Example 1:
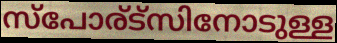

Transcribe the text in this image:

സ്പോര്ട്സിനോടുള്ള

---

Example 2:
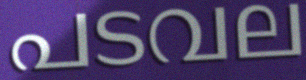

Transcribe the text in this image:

പടവല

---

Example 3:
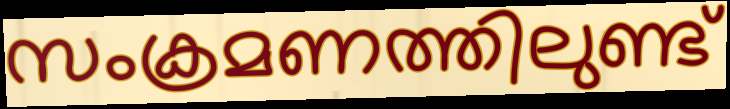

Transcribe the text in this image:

സംക്രമണത്തിലുണ്ട്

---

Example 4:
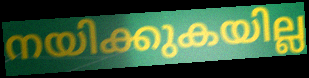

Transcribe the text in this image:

നയിക്കുകയില്ല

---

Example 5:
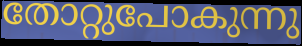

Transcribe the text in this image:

തോറ്റുപോകുന്നു